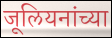
जूलियनांच्या